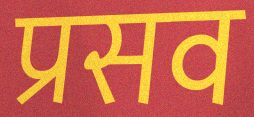
प्रसव